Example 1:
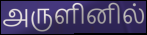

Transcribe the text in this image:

அருளினில்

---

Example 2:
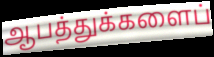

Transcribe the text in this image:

ஆபத்துக்களைப்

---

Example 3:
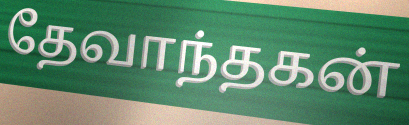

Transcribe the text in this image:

தேவாந்தகன்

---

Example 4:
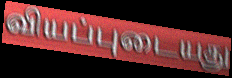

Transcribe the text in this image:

வியப்புடையது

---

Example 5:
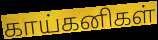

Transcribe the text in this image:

காய்கனிகள்